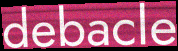
debacle